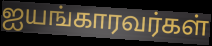
ஐயங்காரவர்கள்